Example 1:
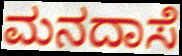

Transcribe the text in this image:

ಮನದಾಸೆ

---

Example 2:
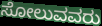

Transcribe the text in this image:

ಸೋಲುವವರು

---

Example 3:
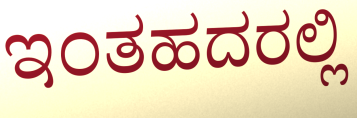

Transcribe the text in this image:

ಇಂತಹದರಲ್ಲಿ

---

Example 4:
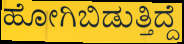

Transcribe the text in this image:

ಹೋಗಿಬಿಡುತ್ತಿದ್ದೆ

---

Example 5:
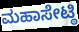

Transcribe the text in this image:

ಮಹಾಸೇಟ್ಠಿ